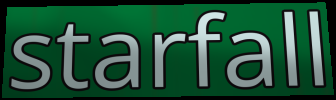
starfall